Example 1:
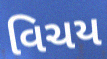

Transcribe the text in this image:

વિચય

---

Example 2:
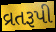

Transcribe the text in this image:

વ્રતરૂપી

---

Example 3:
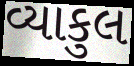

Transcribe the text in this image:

વ્યાકુલ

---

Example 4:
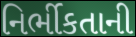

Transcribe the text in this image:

નિર્ભીકતાની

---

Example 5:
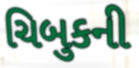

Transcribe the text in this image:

ચિબુકની